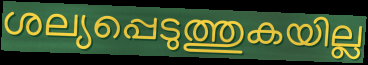
ശല്യപ്പെടുത്തുകയില്ല